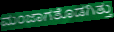
ಮಂಜಾಗತೊಡಗಿತ್ತು